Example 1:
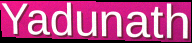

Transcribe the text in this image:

Yadunath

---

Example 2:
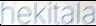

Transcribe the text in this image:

hekitala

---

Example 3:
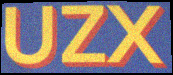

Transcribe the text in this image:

UZX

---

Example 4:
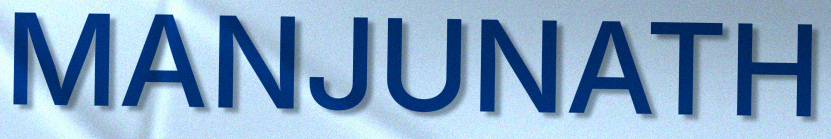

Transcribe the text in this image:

MANJUNATH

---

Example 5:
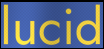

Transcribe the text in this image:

lucid